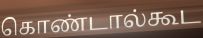
கொண்டால்கூட